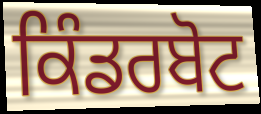
ਕਿੰਡਰਬੋਟ